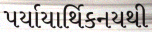
પર્યાયાર્થિકનયથી